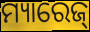
ମ୍ୟାରେଜ୍